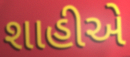
શાહીએ